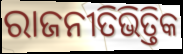
ରାଜନୀତିଭିତ୍ତିକ